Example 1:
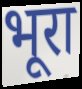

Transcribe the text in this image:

भूरा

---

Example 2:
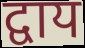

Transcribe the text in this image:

द्वाय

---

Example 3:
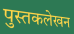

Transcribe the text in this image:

पुस्तकलेखन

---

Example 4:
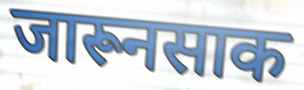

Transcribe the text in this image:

जारूनसाक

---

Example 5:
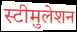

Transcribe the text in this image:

स्टीमुलेशन